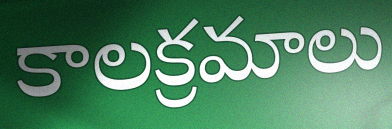
కాలక్రమాలు